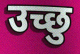
उच्छु